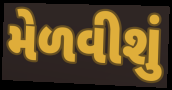
મેળવીશું